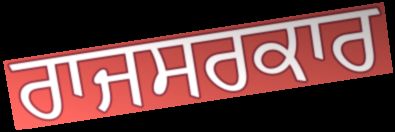
ਰਾਜਸਰਕਾਰ